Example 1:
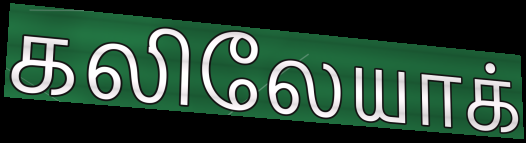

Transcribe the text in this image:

கலிலேயாக்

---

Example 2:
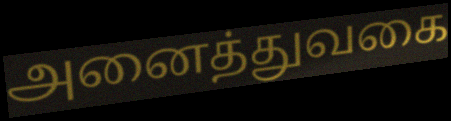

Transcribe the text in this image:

அனைத்துவகை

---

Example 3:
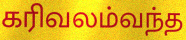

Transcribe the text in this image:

கரிவலம்வந்த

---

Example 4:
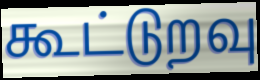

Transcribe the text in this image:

கூட்டுறவு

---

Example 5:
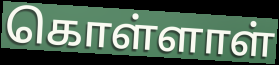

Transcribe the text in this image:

கொள்ளாள்